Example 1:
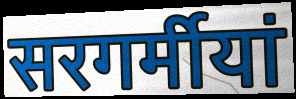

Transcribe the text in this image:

सरगर्मीयां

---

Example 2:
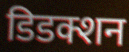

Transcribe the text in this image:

डिडक्शन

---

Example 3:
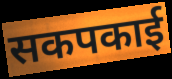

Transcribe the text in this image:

सकपकाई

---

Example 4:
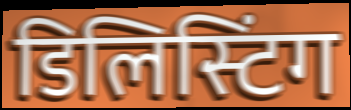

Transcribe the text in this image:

डिलिस्टिंग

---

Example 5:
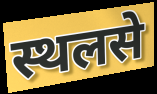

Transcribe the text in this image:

स्थलसे